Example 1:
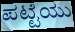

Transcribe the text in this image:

ಪಟ್ಟೆಯು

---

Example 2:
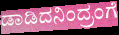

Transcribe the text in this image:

ಡಾಡಿದನಿಂದ್ರಂಗೆ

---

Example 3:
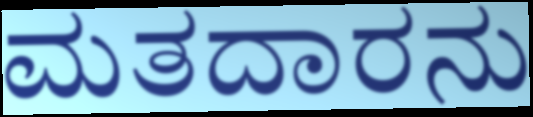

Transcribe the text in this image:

ಮತದಾರನು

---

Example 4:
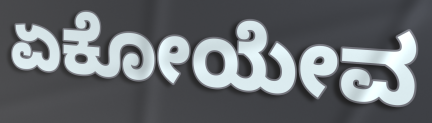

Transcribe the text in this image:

ಏಕೋಯೇವ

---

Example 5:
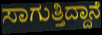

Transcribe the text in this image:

ಸಾಗುತ್ತಿದ್ದಾನೆ